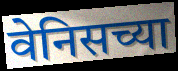
वेनिसच्या